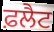
ਫ਼ਲੈਟ